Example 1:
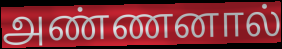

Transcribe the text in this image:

அண்ணனால்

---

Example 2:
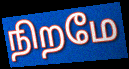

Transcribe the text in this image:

நிறமே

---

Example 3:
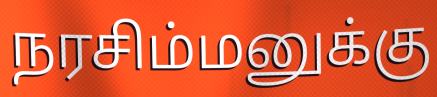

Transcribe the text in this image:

நரசிம்மனுக்கு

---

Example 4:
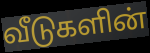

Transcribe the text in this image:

வீடுகளின்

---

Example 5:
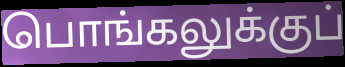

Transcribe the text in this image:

பொங்கலுக்குப்